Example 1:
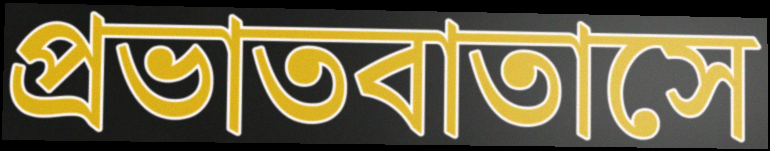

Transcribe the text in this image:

প্রভাতবাতাসে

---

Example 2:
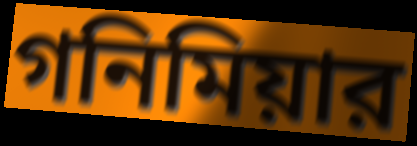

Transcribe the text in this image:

গনিমিয়ার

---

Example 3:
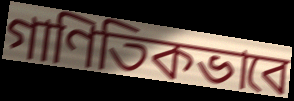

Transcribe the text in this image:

গাণিতিকভাবে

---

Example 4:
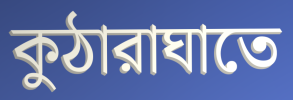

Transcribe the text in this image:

কুঠারাঘাতে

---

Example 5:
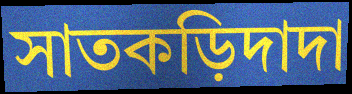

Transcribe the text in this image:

সাতকড়িদাদা